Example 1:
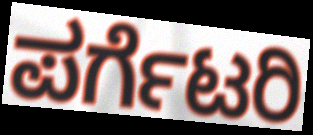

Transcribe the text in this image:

ಪರ್ಗೆಟರಿ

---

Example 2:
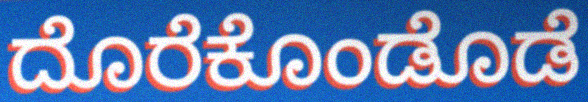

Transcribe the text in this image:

ದೊರೆಕೊಂಡೊಡೆ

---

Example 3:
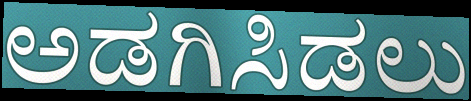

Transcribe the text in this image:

ಅಡಗಿಸಿಡಲು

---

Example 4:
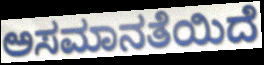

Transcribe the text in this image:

ಅಸಮಾನತೆಯಿದೆ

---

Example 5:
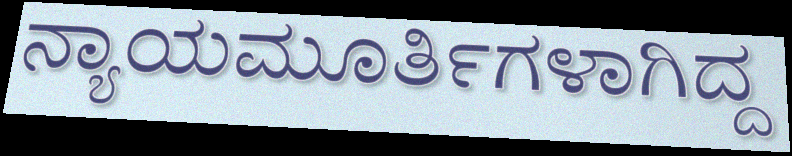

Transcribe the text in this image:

ನ್ಯಾಯಮೂರ್ತಿಗಳಾಗಿದ್ದ